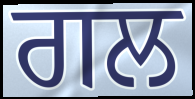
ਗਲ